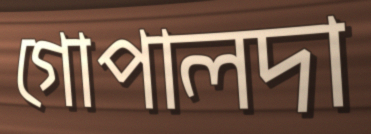
গোপালদা